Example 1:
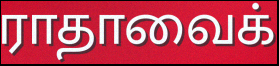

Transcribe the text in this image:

ராதாவைக்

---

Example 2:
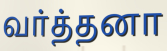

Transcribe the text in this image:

வர்த்தனா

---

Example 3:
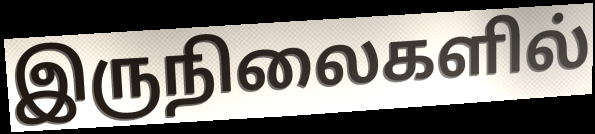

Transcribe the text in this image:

இருநிலைகளில்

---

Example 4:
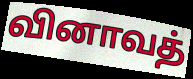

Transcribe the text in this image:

வினாவத்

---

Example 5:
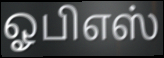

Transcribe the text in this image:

ஓபிஎஸ்